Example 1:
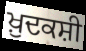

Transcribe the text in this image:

ਖ਼ੁਦਕਸ਼ੀ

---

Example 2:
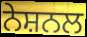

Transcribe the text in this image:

ਨੇਸ਼ਨਲ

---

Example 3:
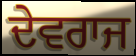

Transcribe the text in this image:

ਦੇਵਰਾਜ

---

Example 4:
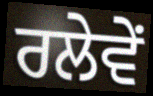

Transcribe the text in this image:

ਰਲੇਵੇਂ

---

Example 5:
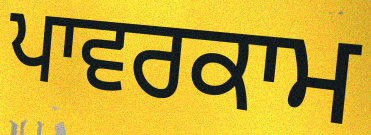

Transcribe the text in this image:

ਪਾਵਰਕਾਮ